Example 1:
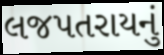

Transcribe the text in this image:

લજપતરાયનું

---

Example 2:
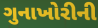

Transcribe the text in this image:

ગુનાખોરીની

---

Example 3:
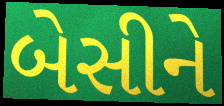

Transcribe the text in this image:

બેસીને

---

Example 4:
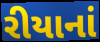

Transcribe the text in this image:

રીયાનાં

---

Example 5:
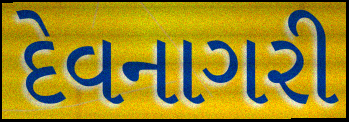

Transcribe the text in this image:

દેવનાગરી